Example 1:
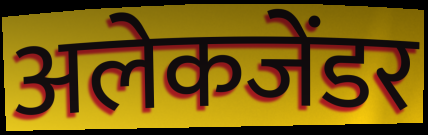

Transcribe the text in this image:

अलेकजेंडर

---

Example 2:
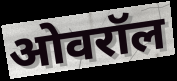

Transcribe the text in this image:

ओवरॉल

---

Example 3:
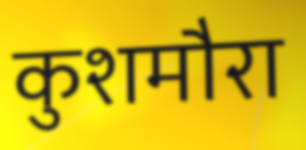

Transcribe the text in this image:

कुशमौरा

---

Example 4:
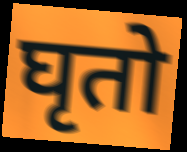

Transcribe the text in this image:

घृतो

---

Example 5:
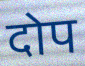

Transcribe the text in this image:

दोप